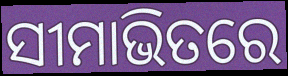
ସୀମାଭିତରେ